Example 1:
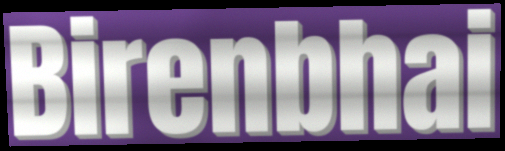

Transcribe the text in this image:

Birenbhai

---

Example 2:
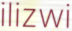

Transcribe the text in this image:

ilizwi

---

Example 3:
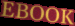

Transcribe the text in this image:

EBOOK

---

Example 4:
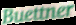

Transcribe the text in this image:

Buettner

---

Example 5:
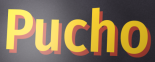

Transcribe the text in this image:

Pucho